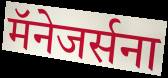
मॅनेजर्सना